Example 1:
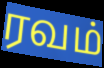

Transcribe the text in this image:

ரவம்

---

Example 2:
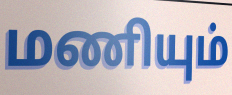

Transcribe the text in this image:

மணியும்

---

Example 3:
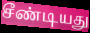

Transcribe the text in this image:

சீண்டியது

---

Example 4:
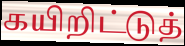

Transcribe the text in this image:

கயிறிட்டுத்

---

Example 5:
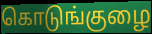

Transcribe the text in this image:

கொடுங்குழை